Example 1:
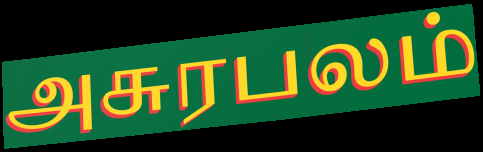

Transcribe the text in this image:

அசுரபலம்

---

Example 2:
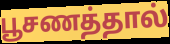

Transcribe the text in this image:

பூசணத்தால்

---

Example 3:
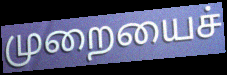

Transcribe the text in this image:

முறையைச்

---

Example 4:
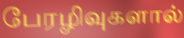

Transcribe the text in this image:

பேரழிவுகளால்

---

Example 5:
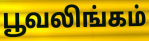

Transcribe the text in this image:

பூவலிங்கம்